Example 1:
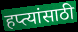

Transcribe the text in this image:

हप्त्यांसाठी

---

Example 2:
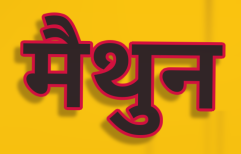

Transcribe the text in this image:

मैथुन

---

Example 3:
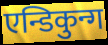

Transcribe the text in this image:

एन्डिकुन्ग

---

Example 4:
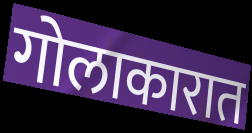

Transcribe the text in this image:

गोलाकारात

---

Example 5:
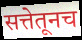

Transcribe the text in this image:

सत्तेतूनच